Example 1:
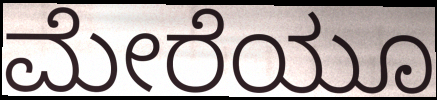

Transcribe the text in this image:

ಮೇರೆಯೂ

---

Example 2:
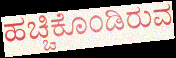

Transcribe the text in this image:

ಹಚ್ಚಿಕೊಂಡಿರುವ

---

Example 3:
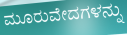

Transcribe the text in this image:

ಮೂರುವೇದಗಳನ್ನು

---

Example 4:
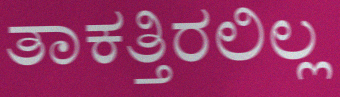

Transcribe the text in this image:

ತಾಕತ್ತಿರಲಿಲ್ಲ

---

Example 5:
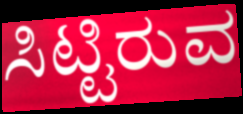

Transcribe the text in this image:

ಸಿಟ್ಟಿರುವ